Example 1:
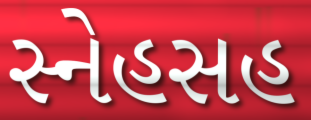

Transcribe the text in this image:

સ્નેહસહ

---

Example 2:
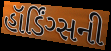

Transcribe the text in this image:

હૉર્ડિંગ્સની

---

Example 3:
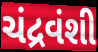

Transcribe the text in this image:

ચંદ્રવંશી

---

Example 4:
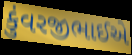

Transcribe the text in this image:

કુંવરજીભાઈએ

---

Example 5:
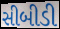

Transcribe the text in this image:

સીબીડી